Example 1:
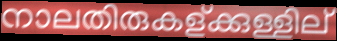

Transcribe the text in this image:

നാലതിരുകള്ക്കുള്ളില്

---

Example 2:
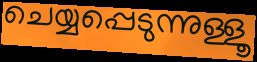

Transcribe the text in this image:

ചെയ്യപ്പെടുന്നുള്ളൂ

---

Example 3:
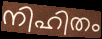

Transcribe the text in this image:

നിഹിതം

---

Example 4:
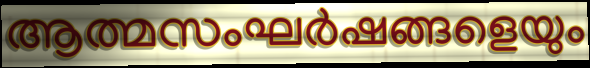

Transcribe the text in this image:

ആത്മസംഘർഷങ്ങളെയും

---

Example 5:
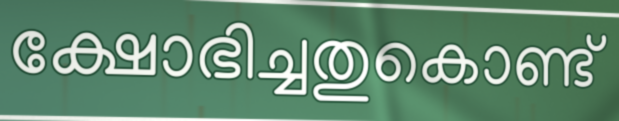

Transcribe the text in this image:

ക്ഷോഭിച്ചതുകൊണ്ട്